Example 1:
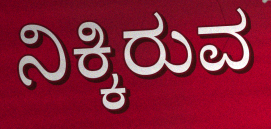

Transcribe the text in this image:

ನಿಕ್ಕಿರುವ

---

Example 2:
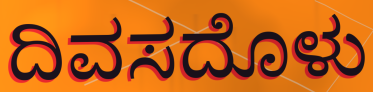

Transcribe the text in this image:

ದಿವಸದೊಳು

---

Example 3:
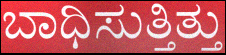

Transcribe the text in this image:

ಬಾಧಿಸುತ್ತಿತ್ತು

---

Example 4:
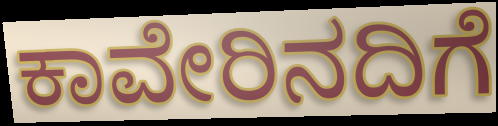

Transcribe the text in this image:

ಕಾವೇರಿನದಿಗೆ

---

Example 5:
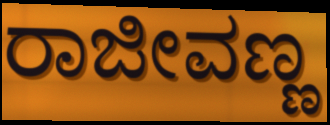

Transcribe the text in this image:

ರಾಜೀವಣ್ಣ